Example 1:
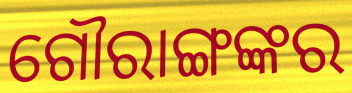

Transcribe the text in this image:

ଗୌରାଙ୍ଗଙ୍କର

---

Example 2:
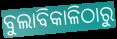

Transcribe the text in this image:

ବୁଲାବିକାଳିଠାରୁ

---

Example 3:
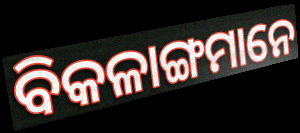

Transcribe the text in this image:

ବିକଳାଙ୍ଗମାନେ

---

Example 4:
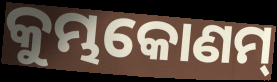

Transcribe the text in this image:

କୁମ୍ଭକୋଣମ୍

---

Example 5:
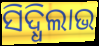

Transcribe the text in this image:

ସିଦ୍ଧିଲାଭ